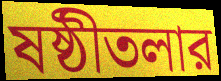
ষষ্ঠীতলার